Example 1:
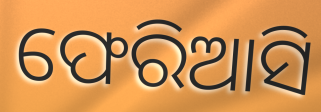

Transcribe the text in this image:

ଫେରିଆସି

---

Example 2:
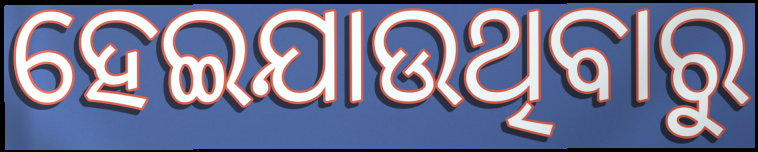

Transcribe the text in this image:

ହେଇଯାଉଥିବାରୁ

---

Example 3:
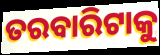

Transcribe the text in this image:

ତରବାରିଟାକୁ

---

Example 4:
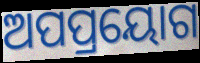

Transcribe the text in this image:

ଅପପ୍ରୟୋଗ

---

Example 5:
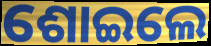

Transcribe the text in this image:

ଶୋଇଲେ